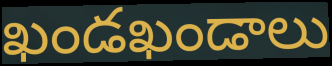
ఖండఖండాలు